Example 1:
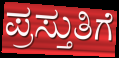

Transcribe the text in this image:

ಪ್ರಸ್ತುತಿಗೆ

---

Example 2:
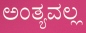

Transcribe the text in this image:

ಅಂತ್ಯವಲ್ಲ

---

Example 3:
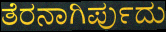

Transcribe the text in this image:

ತೆರನಾಗಿರ್ಪುದು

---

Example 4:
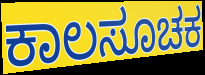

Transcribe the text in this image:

ಕಾಲಸೂಚಕ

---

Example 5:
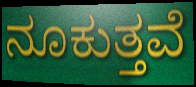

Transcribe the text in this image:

ನೂಕುತ್ತವೆ